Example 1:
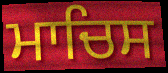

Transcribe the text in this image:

ਮਾਚਿਸ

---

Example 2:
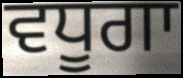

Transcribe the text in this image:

ਵਧੂਗਾ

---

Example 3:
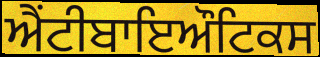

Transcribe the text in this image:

ਐਂਟੀਬਾਇਔਟਿਕਸ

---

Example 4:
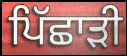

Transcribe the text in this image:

ਪਿੱਛਾੜੀ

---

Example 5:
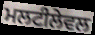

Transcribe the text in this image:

ਮਲਟੀਲੇਵਲ